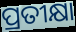
ପ୍ରତୀକ୍ଷା